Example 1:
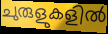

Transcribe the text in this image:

ചുരുളുകളിൽ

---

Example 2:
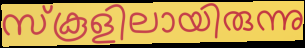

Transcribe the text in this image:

സ്കൂളിലായിരുന്നു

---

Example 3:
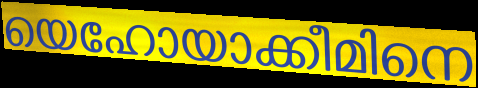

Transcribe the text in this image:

യെഹോയാക്കീമിനെ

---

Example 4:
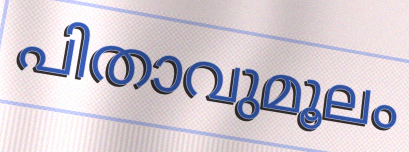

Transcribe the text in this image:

പിതാവുമൂലം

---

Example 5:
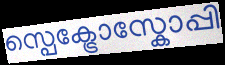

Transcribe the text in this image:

സ്പെക്ട്രോസ്കോപ്പി